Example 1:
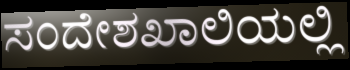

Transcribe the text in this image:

ಸಂದೇಶಖಾಲಿಯಲ್ಲಿ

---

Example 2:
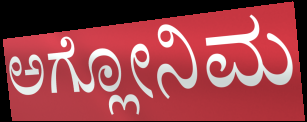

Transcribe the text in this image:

ಅಗ್ಲೋನಿಮ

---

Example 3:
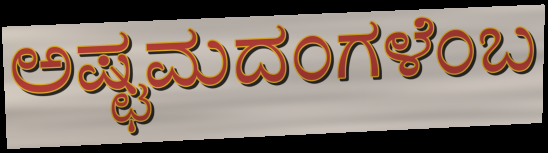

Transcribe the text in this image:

ಅಷ್ಟಮದಂಗಳೆಂಬ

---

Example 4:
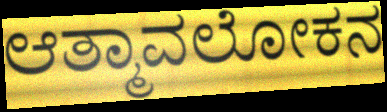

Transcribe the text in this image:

ಆತ್ಮಾವಲೋಕನ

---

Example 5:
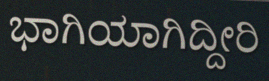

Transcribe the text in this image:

ಭಾಗಿಯಾಗಿದ್ದೀರಿ